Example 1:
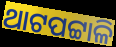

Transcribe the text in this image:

ଥାଟପଟ୍ଟାଳି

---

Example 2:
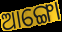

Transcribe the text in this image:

ଆଙ୍ଗୋ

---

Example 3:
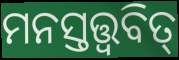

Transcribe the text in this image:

ମନସ୍ତତ୍ତ୍ଵବିତ୍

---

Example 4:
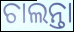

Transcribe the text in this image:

ଚାଲନ୍ତା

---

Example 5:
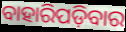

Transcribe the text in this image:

ବାହାରିପଡ଼ିବାର